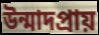
উন্মাদপ্রায়